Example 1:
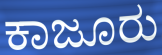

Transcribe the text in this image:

ಕಾಜೂರು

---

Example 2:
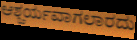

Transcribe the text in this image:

ಆಶ್ಚರ್ಯವಾಗಲಾರದು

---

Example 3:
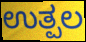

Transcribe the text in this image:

ಉತ್ಪಲ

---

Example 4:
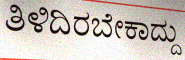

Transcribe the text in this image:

ತಿಳಿದಿರಬೇಕಾದ್ದು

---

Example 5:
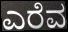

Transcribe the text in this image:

ಎರೆವ